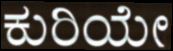
ಕುರಿಯೇ